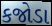
કજોડા